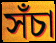
সঁচা